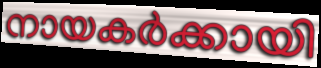
നായകർക്കായി